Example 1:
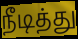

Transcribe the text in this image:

நீடித்து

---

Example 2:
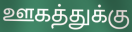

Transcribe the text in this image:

ஊகத்துக்கு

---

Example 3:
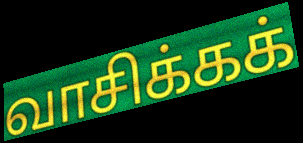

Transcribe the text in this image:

வாசிக்கக்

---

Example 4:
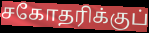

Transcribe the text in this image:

சகோதரிக்குப்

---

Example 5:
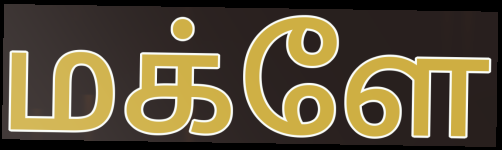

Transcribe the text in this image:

மக்ளே